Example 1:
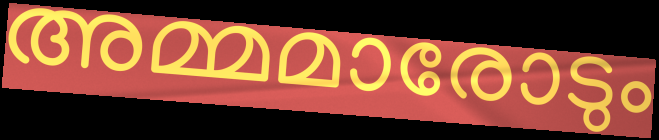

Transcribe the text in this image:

അമ്മമാരോടും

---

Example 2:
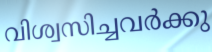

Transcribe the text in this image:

വിശ്വസിച്ചവർക്കു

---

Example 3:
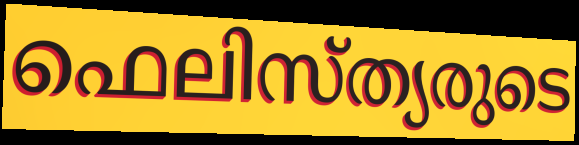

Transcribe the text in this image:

ഫെലിസ്ത്യരുടെ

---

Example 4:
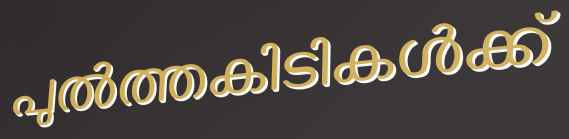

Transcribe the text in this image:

പുൽത്തകിടികൾക്ക്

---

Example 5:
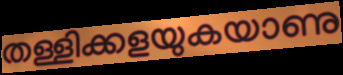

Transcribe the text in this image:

തള്ളിക്കളയുകയാണു